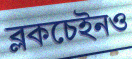
ব্লকচেইনও